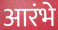
आरंभे